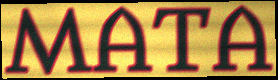
MATA